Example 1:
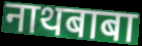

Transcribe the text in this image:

नाथबाबा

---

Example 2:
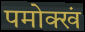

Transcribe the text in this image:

पमोक्खं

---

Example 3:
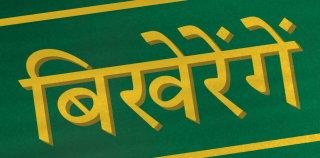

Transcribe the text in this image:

बिखेरेंगें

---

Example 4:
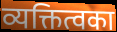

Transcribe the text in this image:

व्यक्तित्वका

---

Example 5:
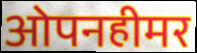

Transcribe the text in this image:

ओपनहीमर